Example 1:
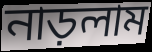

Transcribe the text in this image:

নাড়লাম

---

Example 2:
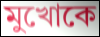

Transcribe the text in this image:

মুখোকে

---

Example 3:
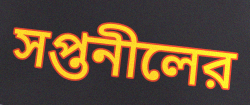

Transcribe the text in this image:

সপ্তনীলের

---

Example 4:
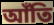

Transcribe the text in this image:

আঁতি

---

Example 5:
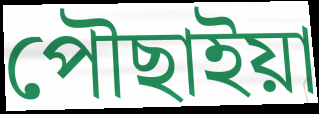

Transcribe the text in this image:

পৌছাইয়া